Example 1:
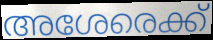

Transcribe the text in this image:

അശേരെക്ക്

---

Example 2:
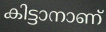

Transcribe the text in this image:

കിട്ടാനാണ്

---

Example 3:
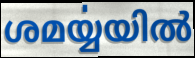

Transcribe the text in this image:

ശമൎയ്യയിൽ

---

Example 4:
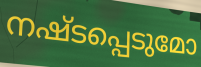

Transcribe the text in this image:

നഷ്ടപ്പെടുമോ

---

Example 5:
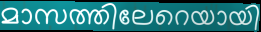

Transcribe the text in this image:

മാസത്തിലേറെയായി